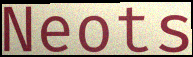
Neots